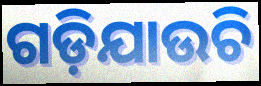
ଗଡ଼ିଯାଉଚି